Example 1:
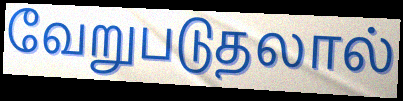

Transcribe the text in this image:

வேறுபடுதலால்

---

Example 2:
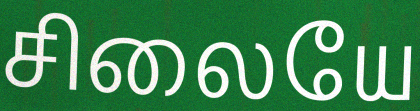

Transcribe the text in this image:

சிலையே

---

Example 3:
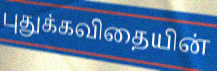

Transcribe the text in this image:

புதுக்கவிதையின்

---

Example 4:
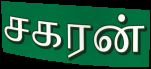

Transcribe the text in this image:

சகரன்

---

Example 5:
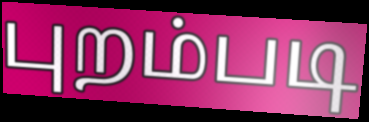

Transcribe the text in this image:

புறம்படி